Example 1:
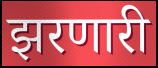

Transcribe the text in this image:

झरणारी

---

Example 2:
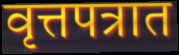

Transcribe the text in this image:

वृत्तपत्रात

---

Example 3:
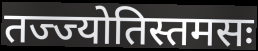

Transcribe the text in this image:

तज्ज्योतिस्तमसः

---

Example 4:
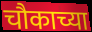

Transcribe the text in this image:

चौकाच्या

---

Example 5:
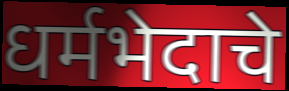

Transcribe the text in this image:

धर्मभेदाचे